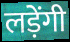
लड़ेंगी